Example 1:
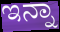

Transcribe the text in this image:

ಇನ್ನಾ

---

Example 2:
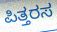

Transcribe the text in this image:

ಪಿತ್ತರಸ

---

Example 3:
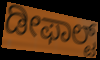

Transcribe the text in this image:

ಡೀಫಾಲ್ಟ್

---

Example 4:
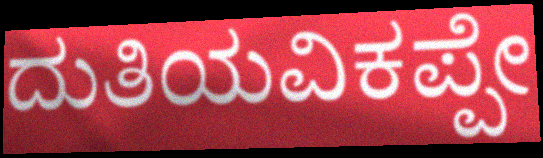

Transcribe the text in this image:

ದುತಿಯವಿಕಪ್ಪೇ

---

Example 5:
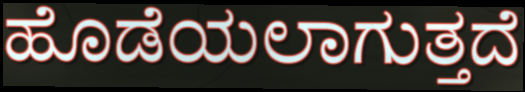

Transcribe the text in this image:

ಹೊಡೆಯಲಾಗುತ್ತದೆ